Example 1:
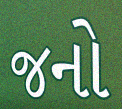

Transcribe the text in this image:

જનો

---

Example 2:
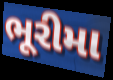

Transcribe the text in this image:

ભૂરીમા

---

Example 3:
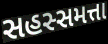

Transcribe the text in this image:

સહસ્સમત્તા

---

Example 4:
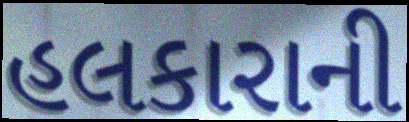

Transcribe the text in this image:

હલકારાની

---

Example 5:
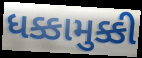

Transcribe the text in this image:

ધક્કામુક્કી